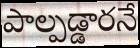
పాల్పడ్డారనే